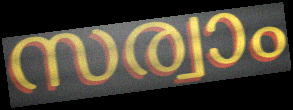
സര്വാം